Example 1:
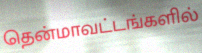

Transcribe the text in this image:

தென்மாவட்டங்களில்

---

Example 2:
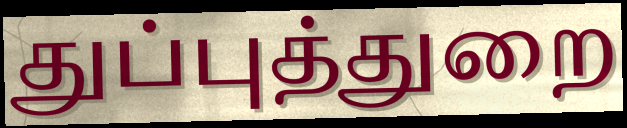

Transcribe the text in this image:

துப்புத்துறை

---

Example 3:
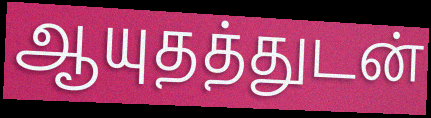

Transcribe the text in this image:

ஆயுதத்துடன்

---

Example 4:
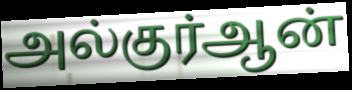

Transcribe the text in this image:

அல்குர்ஆன்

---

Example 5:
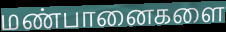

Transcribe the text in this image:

மண்பானைகளை